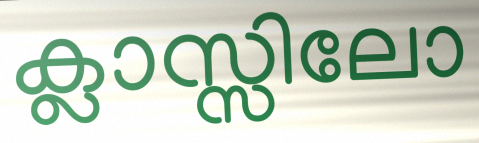
ക്ലാസ്സിലോ